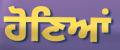
ਹੋਣਿਆਂ